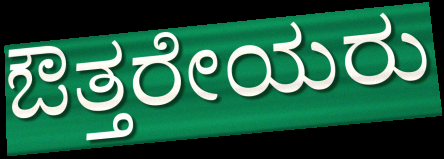
ಔತ್ತರೇಯರು